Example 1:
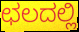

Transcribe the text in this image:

ಛಲದಲ್ಲಿ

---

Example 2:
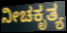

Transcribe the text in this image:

ನೀಚಕೃತ್ಯ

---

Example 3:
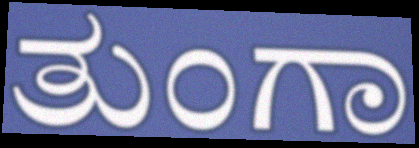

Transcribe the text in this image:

ತುಂಗಾ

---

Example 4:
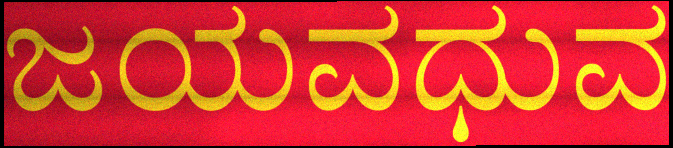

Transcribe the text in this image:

ಜಯವಧುವ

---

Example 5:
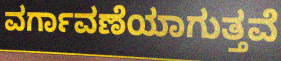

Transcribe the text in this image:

ವರ್ಗಾವಣೆಯಾಗುತ್ತವೆ